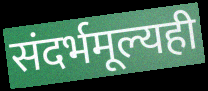
संदर्भमूल्यही